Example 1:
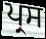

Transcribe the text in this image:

ਪ੍ਰਸ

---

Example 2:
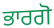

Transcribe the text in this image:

ਭਾਰਗੋ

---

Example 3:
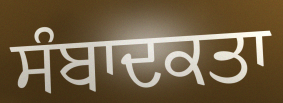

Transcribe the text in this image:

ਸੰਬਾਦਕਤਾ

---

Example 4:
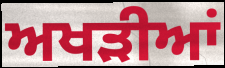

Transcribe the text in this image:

ਅਖੜੀਆਂ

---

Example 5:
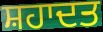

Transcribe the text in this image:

ਸ਼ਹਾਦਤ